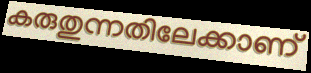
കരുതുന്നതിലേക്കാണ്